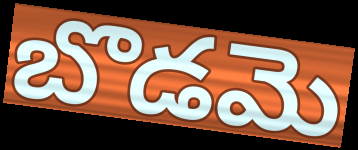
బొడమె